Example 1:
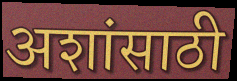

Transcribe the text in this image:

अशांसाठी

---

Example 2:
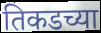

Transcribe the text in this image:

तिकडच्या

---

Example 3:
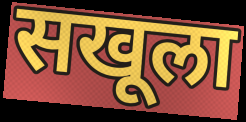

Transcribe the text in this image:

सखूला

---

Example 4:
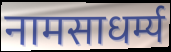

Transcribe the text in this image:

नामसाधर्म्य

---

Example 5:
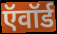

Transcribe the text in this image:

ऍवॉर्ड